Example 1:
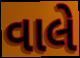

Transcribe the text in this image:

વાલે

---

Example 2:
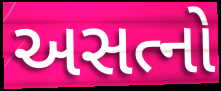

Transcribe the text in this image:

અસત્નો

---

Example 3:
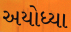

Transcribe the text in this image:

અયોધ્યા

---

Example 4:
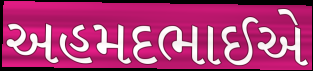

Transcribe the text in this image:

અહમદભાઈએ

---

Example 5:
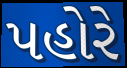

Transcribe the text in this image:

પહોરે